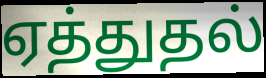
ஏத்துதல்